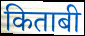
किताबी